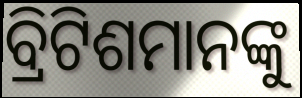
ବ୍ରିଟିଶମାନଙ୍କୁ